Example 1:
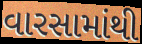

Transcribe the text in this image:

વારસામાંથી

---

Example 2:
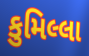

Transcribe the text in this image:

કુમિલ્લા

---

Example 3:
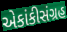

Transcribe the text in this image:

એકાંકીસંગ્રહ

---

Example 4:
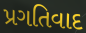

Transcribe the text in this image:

પ્રગતિવાદ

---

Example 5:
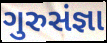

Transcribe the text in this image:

ગુરુસંજ્ઞા